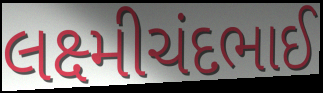
લક્ષ્મીચંદભાઈ